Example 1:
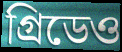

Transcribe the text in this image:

গ্রিডেও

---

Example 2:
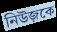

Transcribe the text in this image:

নিউজ়কে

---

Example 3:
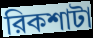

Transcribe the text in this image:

রিকশাটা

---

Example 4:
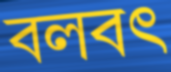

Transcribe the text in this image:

বলবৎ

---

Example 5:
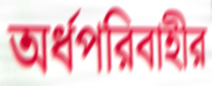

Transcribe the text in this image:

অর্ধপরিবাহীর